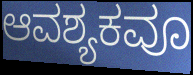
ಆವಶ್ಯಕವೂ